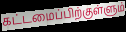
கட்டமைப்பிற்குள்ளும்